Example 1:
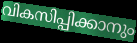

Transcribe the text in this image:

വികസിപ്പിക്കാനും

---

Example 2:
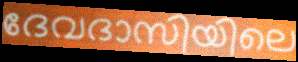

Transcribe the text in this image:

ദേവദാസിയിലെ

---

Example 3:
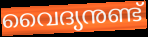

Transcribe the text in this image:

വൈദ്യനുണ്ട്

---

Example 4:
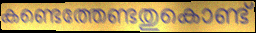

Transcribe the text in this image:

കണ്ടെത്തേണ്ടതുകൊണ്ട്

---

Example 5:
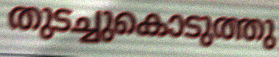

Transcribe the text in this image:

തുടച്ചുകൊടുത്തു